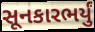
સૂનકારભર્યું